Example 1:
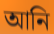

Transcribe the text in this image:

আনি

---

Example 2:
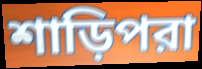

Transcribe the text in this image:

শাড়িপরা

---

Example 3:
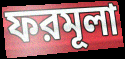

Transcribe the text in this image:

ফরমূলা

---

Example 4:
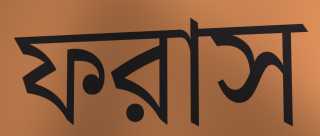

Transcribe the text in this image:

ফরাস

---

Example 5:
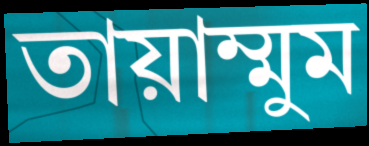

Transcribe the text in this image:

তায়াম্মুম